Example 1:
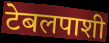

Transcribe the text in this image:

टेबलपाशी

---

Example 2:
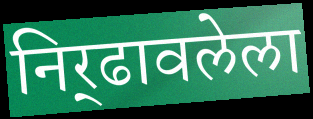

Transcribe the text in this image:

निर्ढावलेला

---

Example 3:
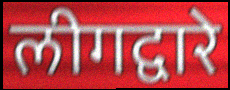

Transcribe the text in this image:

लीगद्वारे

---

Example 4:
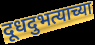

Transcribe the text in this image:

दूधदुभत्याच्या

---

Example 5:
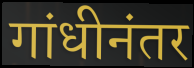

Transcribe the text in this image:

गांधीनंतर